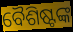
ବୈଶିଷ୍ଟଙ୍କ